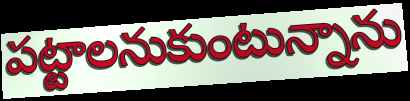
పట్టాలనుకుంటున్నాను